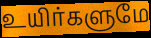
உயிர்களுமே